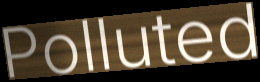
Polluted